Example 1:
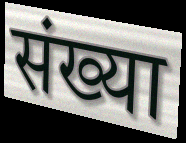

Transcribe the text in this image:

संख्या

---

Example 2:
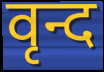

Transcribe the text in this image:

वृन्द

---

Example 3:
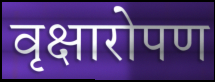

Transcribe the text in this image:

वृक्षारोपण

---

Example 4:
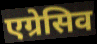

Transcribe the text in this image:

एग्रेसिव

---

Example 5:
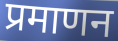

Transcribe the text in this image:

प्रमाणन